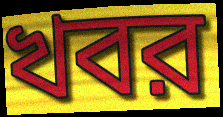
খবর